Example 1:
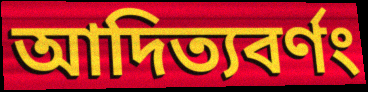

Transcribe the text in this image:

আদিত্যবর্ণং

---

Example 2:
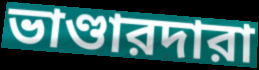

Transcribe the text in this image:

ভাণ্ডারদারা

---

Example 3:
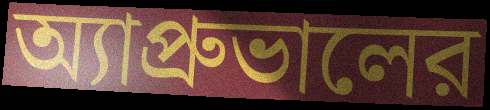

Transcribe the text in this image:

অ্যাপ্রুভালের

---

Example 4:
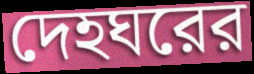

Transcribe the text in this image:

দেহঘরের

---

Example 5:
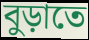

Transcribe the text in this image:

বুড়াতে